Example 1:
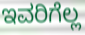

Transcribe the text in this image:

ಇವರಿಗೆಲ್ಲ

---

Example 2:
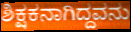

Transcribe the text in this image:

ಶಿಕ್ಷಕನಾಗಿದ್ದವನು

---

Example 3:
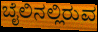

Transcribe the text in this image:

ಬೈಲಿನಲ್ಲಿರುವ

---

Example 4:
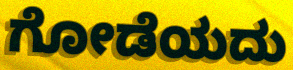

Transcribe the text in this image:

ಗೋಡೆಯದು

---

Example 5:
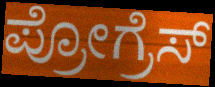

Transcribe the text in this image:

ಪ್ರೋಗ್ರೆಸ್